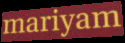
mariyam